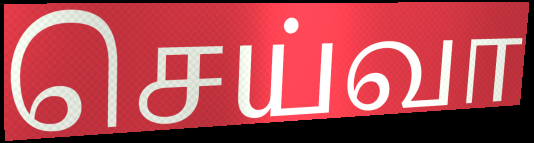
செய்வா